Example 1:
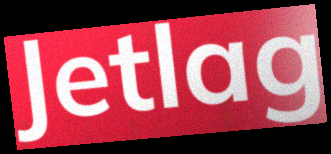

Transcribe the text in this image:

Jetlag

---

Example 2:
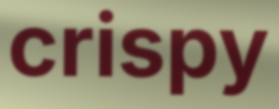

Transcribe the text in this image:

crispy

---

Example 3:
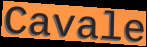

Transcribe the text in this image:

Cavale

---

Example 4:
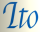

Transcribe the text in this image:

Ito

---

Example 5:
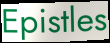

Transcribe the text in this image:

Epistles